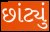
છાંટ્યું